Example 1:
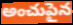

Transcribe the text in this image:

అంచుపైన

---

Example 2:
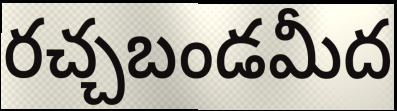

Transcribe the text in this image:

రచ్చబండమీద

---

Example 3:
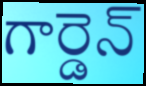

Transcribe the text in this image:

గార్డెన్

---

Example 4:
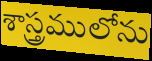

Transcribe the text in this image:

శాస్త్రములోను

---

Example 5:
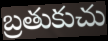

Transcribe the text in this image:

బ్రతుకుచు